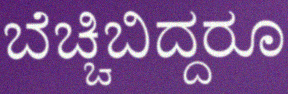
ಬೆಚ್ಚಿಬಿದ್ದರೂ